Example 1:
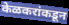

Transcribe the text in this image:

केळकरांकडून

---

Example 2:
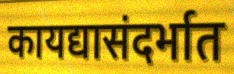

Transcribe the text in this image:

कायद्यासंदर्भात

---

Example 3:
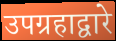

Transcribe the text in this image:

उपग्रहाद्वारे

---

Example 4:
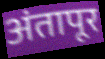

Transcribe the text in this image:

अंतापूर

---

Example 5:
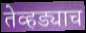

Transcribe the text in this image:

तेव्हड्याच